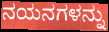
ನಯನಗಳನ್ನು